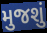
મુજશું